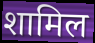
शामिल